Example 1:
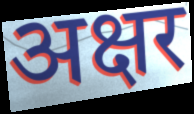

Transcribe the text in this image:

अक्षर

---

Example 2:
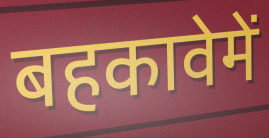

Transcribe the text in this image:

बहकावेमें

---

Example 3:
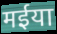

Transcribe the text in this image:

मईया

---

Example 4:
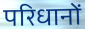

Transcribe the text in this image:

परिधानों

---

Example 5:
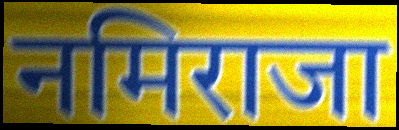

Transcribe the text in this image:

नमिराजा